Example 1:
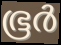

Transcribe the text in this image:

ഭൂർ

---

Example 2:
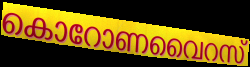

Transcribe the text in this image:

കൊറോണവൈറസ്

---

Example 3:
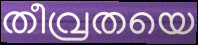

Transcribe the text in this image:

തീവ്രതയെ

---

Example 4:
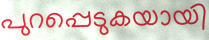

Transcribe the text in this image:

പുറപ്പെടുകയായി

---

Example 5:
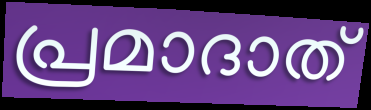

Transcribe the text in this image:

പ്രമാദാത്